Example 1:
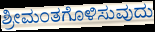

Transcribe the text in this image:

ಶ್ರೀಮಂತಗೊಳಿಸುವುದು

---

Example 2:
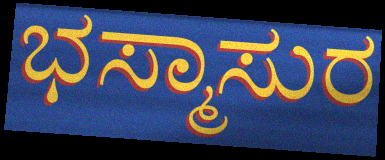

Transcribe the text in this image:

ಭಸ್ಮಾಸುರ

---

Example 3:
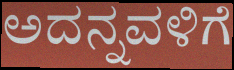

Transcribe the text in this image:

ಅದನ್ನವಳಿಗೆ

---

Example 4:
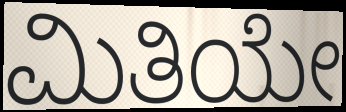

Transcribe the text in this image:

ಮಿತಿಯೇ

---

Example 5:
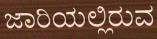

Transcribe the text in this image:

ಜಾರಿಯಲ್ಲಿರುವ